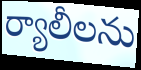
ర్యాలీలను